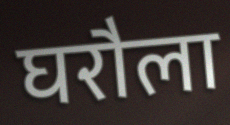
घरौला